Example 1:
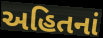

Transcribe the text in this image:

અહિતનાં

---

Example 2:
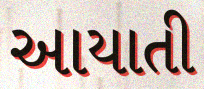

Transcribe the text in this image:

આયાતી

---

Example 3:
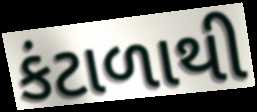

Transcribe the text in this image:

કંટાળાથી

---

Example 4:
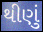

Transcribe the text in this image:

થીણું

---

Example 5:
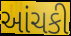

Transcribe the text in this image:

આંચકી